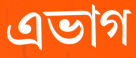
এভাগ